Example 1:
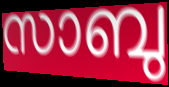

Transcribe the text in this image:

സാബു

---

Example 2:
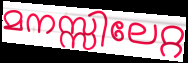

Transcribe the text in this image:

മനസ്സിലേറ്റ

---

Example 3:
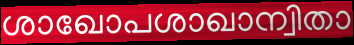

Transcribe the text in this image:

ശാഖോപശാഖാന്വിതാ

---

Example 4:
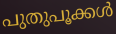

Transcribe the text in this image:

പുതുപൂക്കൾ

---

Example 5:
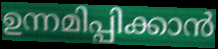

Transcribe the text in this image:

ഉന്നമിപ്പിക്കാൻ